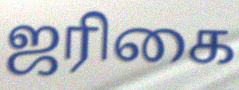
ஜரிகை